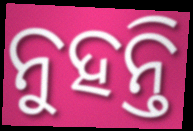
ନୁହନ୍ତି